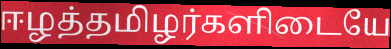
ஈழத்தமிழர்களிடையே